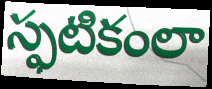
స్ఫటికంలా